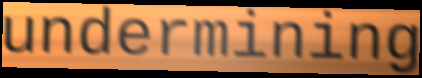
undermining